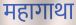
महागाथा